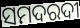
ସମଦରଦୀ